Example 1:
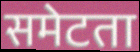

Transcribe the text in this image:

समेटता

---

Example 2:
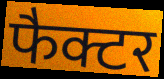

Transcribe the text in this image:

फैक्टर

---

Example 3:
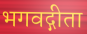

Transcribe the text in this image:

भगवद्गीता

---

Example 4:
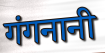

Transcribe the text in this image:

गंगनानी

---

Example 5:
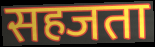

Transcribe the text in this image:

सहजता